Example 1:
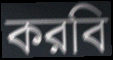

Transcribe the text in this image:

করবি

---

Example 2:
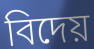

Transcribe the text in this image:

বিদেয়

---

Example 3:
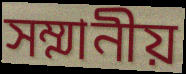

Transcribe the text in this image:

সম্মানীয়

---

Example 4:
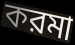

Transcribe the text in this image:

করমা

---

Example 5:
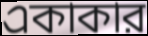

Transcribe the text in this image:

একাকার